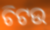
ଚିଟଉ